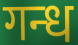
गन्‍ध